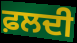
ਫ਼ਲਦੀ